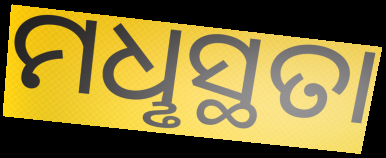
ମଧୢସ୍ଥତା